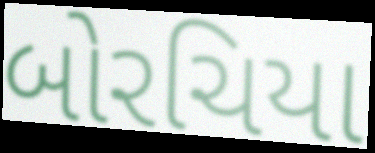
બોરચિયા